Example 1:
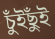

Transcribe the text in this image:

চুঁইছুঁই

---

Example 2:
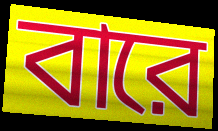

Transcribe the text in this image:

বারে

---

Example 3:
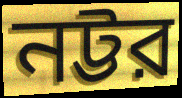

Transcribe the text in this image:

নট্টর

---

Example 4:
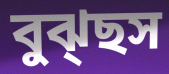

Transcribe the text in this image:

বুঝ্ছস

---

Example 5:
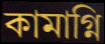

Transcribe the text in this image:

কামাগ্নি